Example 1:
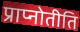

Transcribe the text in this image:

प्राप्नोतीति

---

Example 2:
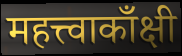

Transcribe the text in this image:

महत्त्वाकाँक्षी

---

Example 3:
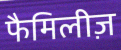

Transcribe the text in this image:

फैमिलीज़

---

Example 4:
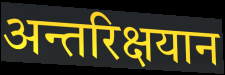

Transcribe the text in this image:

अन्तरिक्षयान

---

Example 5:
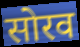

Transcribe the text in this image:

सोरव